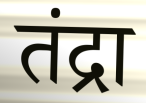
तंद्रा